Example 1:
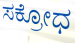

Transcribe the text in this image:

ಸಕ್ರೋಧ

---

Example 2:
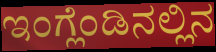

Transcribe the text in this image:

ಇಂಗ್ಲೆಂಡಿನಲ್ಲಿನ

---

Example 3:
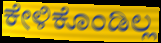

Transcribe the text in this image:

ಕೇಳಿಕೊಂಡಿಲ್ಲ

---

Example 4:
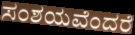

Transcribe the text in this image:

ಸಂಶಯವೆಂದರೆ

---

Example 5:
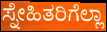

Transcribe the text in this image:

ಸ್ನೇಹಿತರಿಗೆಲ್ಲಾ